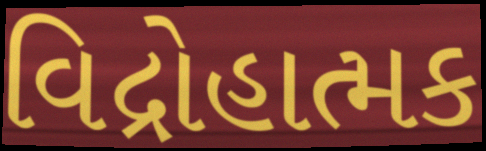
વિદ્રોહાત્મક